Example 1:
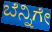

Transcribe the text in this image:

ಬೆನ್ನಿಗೇ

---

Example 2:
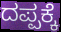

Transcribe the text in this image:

ದಪ್ಪಕ್ಕೆ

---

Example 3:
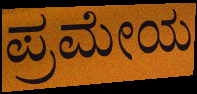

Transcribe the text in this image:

ಪ್ರಮೇಯ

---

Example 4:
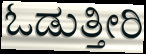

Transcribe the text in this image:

ಓಡುತ್ತೀರಿ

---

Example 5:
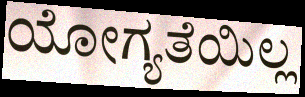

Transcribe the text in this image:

ಯೋಗ್ಯತೆಯಿಲ್ಲ